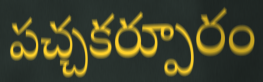
పచ్చకర్పూరం